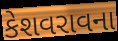
કેશવરાવના